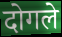
दोगले